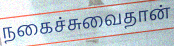
நகைச்சுவைதான்